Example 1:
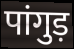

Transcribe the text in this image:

पांगुड़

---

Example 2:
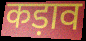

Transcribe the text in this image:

कड़ाव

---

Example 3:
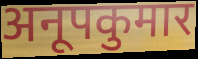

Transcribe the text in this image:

अनूपकुमार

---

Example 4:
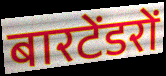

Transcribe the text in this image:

बारटेंडरों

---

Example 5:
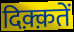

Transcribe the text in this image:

दिक़्क़तें